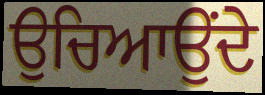
ਉਚਿਆਉਂਦੇ